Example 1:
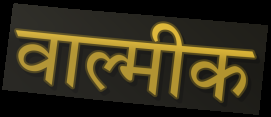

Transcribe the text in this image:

वाल्मीक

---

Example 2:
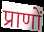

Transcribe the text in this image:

प्राणों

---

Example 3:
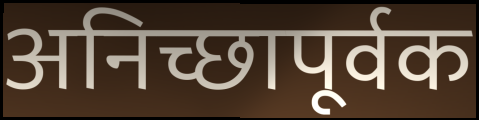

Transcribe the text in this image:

अनिच्छापूर्वक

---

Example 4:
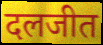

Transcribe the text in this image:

दलजीत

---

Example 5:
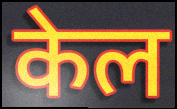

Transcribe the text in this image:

केल